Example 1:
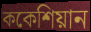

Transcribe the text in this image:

ককেশিয়ান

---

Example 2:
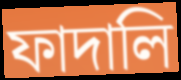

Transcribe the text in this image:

ফাদালি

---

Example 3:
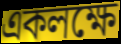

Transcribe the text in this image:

একলক্ষে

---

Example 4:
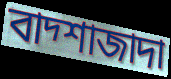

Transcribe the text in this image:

বাদ্শাজাদা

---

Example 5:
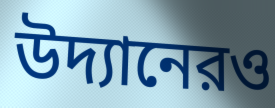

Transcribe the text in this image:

উদ্যানেরও